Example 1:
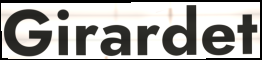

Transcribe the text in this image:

Girardet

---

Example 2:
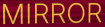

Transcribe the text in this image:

MIRROR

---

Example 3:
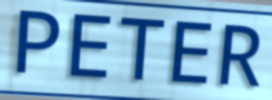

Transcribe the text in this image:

PETER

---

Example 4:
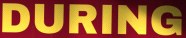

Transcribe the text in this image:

DURING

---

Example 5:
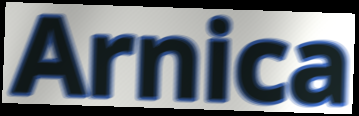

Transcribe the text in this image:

Arnica